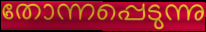
തോന്നപ്പെടുന്നു